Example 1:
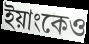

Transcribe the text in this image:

ইয়াংকেও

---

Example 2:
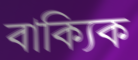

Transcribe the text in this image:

বাক্যিক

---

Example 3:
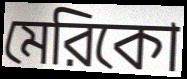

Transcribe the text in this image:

মেরিকো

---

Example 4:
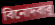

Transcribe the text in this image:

বিনোদবাবু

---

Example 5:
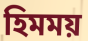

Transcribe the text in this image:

হিমময়